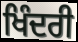
ਖਿੰਦਰੀ